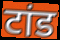
टांड